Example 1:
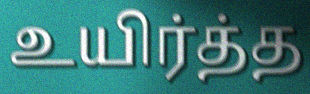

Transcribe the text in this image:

உயிர்த்த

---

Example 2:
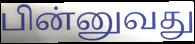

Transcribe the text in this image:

பின்னுவது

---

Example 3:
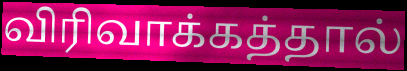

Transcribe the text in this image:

விரிவாக்கத்தால்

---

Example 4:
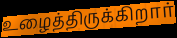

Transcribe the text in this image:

உழைத்திருக்கிறார்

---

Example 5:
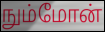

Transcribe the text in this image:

நும்மோன்